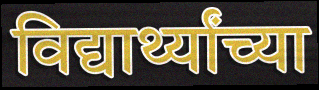
विद्यार्थ्यांच्या